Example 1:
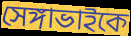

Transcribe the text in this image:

সেঙ্গাভাইকে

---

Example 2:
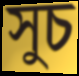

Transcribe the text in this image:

সুচ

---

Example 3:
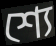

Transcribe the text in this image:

শ্যে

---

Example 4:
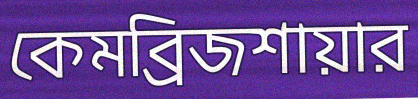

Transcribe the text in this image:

কেমব্রিজশায়ার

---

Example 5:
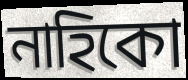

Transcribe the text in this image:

নাহিকো